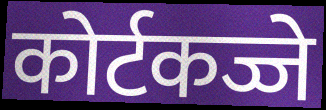
कोर्टकज्जे